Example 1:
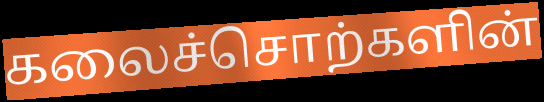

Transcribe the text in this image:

கலைச்சொற்களின்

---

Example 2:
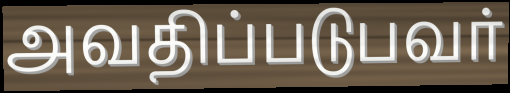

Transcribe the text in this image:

அவதிப்படுபவர்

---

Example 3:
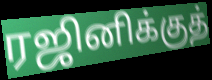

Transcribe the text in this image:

ரஜினிக்குத்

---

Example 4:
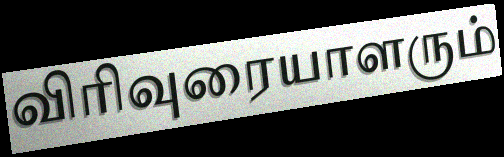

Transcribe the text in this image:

விரிவுரையாளரும்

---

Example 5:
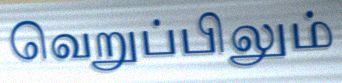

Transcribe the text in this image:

வெறுப்பிலும்